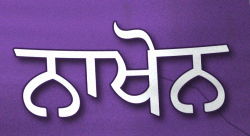
ਨਾਖੋਨ